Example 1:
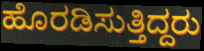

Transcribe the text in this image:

ಹೊರಡಿಸುತ್ತಿದ್ದರು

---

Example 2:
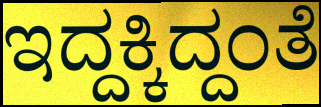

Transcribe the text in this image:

ಇದ್ದಕ್ಕಿದ್ದಂತೆ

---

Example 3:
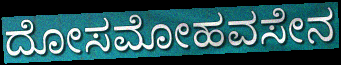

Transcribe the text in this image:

ದೋಸಮೋಹವಸೇನ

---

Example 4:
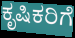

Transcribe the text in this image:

ಕೃಷಿಕರಿಗೆ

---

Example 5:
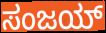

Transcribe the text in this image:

ಸಂಜಯ್